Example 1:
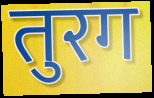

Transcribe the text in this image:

तुरग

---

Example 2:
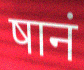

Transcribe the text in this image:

षानं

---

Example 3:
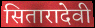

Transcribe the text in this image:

सितारादेवी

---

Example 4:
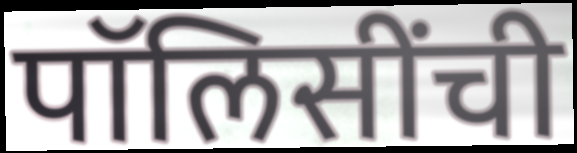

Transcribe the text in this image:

पॉलिसींची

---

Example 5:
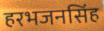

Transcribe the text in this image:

हरभजनसिंह